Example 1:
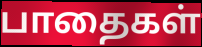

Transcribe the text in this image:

பாதைகள்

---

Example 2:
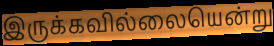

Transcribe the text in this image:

இருக்கவில்லையென்று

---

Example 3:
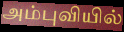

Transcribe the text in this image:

அம்புவியில்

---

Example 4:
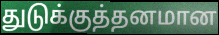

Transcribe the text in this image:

துடுக்குத்தனமான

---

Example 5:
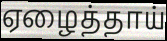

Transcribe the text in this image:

ஏழைத்தாய்